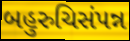
બહુરુચિસંપન્ન